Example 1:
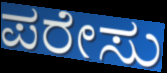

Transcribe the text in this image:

ಪರೇಸು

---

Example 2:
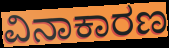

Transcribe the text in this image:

ವಿನಾಕಾರಣ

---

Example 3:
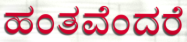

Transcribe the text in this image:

ಹಂತವೆಂದರೆ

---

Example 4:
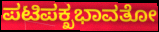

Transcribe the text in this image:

ಪಟಿಪಕ್ಖಭಾವತೋ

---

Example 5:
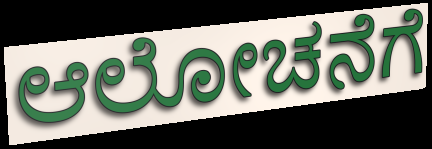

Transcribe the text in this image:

ಆಲೋಚನೆಗೆ